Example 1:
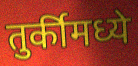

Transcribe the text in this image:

तुर्कीमध्ये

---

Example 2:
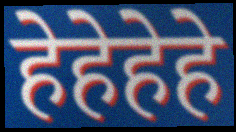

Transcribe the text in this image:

हेहेहेहे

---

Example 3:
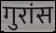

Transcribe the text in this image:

गुरांस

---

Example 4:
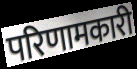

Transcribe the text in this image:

परिणामकारी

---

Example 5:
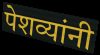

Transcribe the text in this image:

पेशव्यांनी